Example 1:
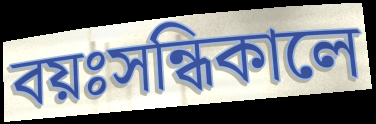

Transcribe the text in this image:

বয়ঃসন্ধিকালে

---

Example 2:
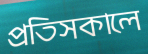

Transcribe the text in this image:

প্রতিসকালে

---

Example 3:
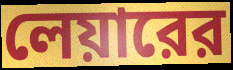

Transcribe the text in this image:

লেয়ারের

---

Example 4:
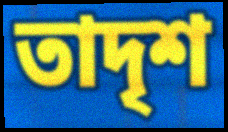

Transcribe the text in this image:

তাদৃশ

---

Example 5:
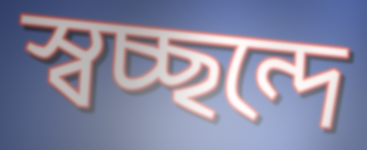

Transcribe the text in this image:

স্বচ্ছন্দে